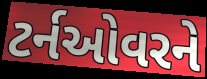
ટર્નઓવરને